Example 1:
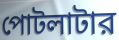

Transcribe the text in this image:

পোটলাটার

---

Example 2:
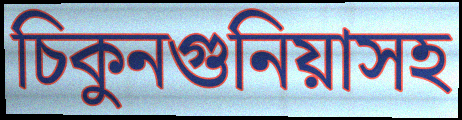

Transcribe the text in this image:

চিকুনগুনিয়াসহ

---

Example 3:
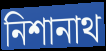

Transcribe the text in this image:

নিশানাথ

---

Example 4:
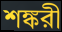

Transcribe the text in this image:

শঙ্করী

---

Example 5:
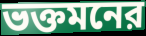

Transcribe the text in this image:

ভক্তমনের